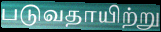
படுவதாயிற்று